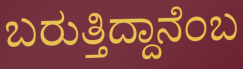
ಬರುತ್ತಿದ್ದಾನೆಂಬ